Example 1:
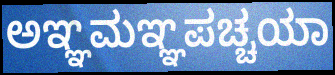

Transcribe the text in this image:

ಅಞ್ಞಮಞ್ಞಪಚ್ಚಯಾ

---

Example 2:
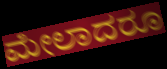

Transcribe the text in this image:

ಮೇಲಾದರೂ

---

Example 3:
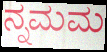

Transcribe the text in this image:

ನ್ನಮಮ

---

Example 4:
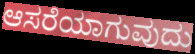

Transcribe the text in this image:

ಆಸರೆಯಾಗುವುದು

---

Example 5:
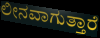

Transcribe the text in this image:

ಲೀನವಾಗುತ್ತಾರೆ